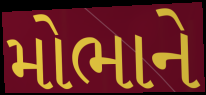
મોભાને